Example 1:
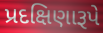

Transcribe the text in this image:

પ્રદક્ષિણારૂપે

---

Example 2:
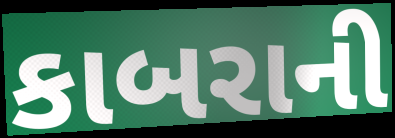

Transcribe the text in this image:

કાબરાની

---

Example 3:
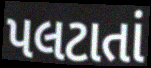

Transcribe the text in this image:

પલટાતાં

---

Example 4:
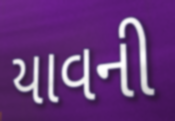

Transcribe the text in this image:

યાવની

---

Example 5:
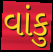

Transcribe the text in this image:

વાંકુ